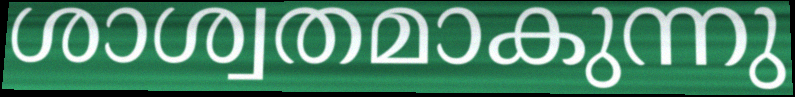
ശാശ്വതമാകുന്നു